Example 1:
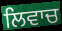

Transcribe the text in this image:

ਲਿਵਾਚ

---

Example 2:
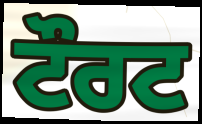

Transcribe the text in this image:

ਟੌਰਟ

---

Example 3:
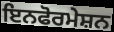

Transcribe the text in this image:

ਇਨਫੋਰਮੇਸ਼ਨ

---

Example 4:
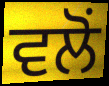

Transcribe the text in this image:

ਵਲੋੰ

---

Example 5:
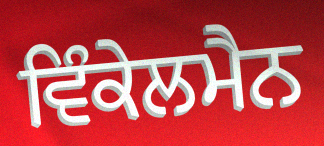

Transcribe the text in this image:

ਵਿੰਕੇਲਮੈਨ